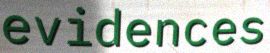
evidences